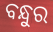
ବନ୍ଧୁର